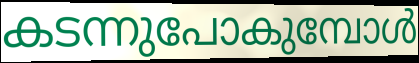
കടന്നുപോകുമ്പോൾ